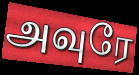
அவுரே